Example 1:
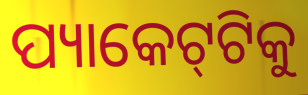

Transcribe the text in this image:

ପ୍ୟାକେଟ୍‌ଟିକୁ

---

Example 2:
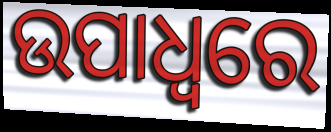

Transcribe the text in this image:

ଉପାଧ୍ଵରେ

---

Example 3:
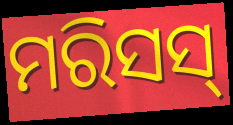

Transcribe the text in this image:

ମରିସସ୍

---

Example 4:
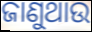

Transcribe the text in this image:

ଜାଣୁଥାଉ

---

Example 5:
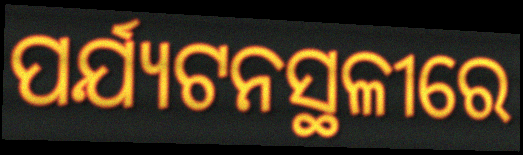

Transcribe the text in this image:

ପର୍ଯ୍ୟଟନସ୍ଥଳୀରେ